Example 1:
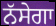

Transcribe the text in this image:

ਨੱਸੇਗਾ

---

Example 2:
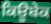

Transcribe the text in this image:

ਕਿਊਬੇਕ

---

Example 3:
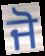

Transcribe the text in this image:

ਜੋ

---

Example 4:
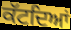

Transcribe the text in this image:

ਕੱਟਦਿਆਂ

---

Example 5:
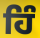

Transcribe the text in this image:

ਹਿੰ